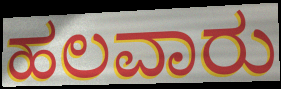
ಹಲವಾರು